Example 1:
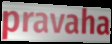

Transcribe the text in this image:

pravaha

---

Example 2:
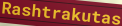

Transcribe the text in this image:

Rashtrakutas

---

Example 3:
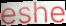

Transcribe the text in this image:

eshe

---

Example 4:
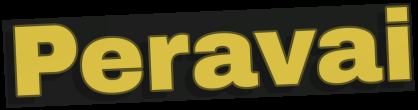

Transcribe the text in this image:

Peravai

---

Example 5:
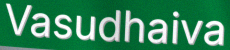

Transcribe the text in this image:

Vasudhaiva